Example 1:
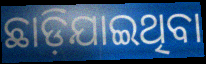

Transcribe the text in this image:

ଛାଡ଼ିଯାଇଥିବା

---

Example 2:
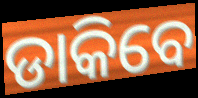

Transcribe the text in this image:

ଡାକିବେ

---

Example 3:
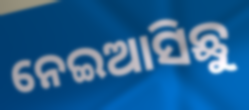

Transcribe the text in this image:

ନେଇଆସିଛୁ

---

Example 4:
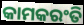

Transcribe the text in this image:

କାମକରଂତି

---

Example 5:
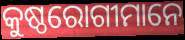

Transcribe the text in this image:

କୁଷ୍ଠରୋଗୀମାନେ